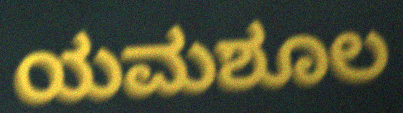
ಯಮಶೂಲ